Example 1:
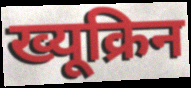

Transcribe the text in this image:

ख्यूक्रिन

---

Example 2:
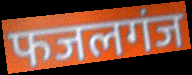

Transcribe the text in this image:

फजलगंज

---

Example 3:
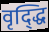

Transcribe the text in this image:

वृद्द्धि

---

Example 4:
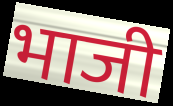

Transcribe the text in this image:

भाजी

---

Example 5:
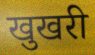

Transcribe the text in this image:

खुखरी